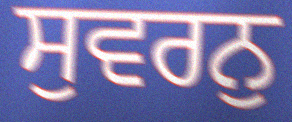
ਸੁਵਰਨੁ